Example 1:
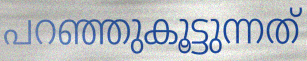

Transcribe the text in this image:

പറഞ്ഞുകൂട്ടുന്നത്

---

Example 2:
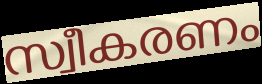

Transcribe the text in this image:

സ്വീകരണം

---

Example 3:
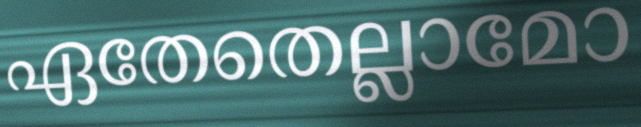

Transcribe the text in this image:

ഏതേതെല്ലാമോ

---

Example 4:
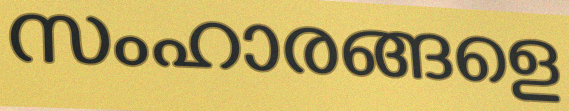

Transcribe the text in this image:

സംഹാരങ്ങളെ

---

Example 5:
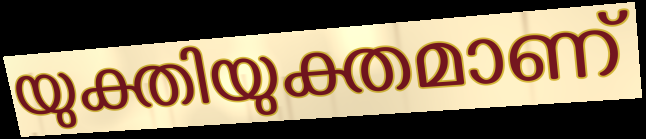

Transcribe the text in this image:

യുക്തിയുക്തമാണ്